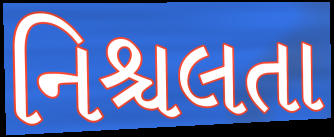
નિશ્ચલતા